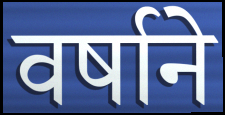
वर्षाने